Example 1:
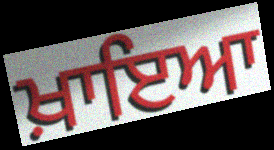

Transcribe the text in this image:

ਖ਼ਾਇਆ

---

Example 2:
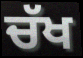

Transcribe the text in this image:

ਚੱਖ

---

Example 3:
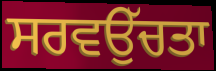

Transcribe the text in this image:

ਸਰਵਉੱਚਤਾ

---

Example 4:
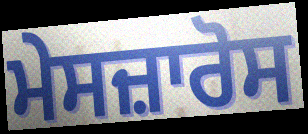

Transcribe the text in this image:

ਮੇਸਜ਼ਾਰੋਸ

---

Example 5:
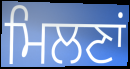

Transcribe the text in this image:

ਮਿਲਣਾਂ